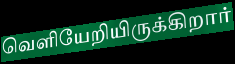
வெளியேறியிருக்கிறார்